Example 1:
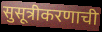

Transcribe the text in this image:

सुसूत्रीकरणाची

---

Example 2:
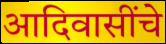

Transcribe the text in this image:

आदिवासींचे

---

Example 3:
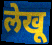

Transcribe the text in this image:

लेखू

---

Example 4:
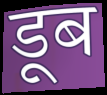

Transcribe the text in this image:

डूब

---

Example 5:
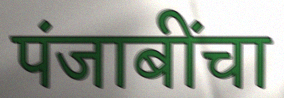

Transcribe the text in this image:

पंजाबींचा